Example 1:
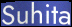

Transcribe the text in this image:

Suhita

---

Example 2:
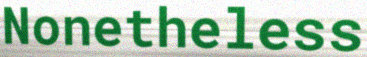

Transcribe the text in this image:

Nonetheless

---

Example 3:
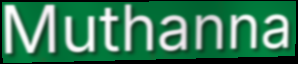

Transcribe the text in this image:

Muthanna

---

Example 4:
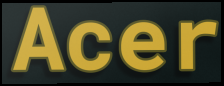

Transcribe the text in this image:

Acer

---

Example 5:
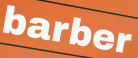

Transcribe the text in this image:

barber